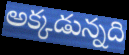
అక్కడున్నది